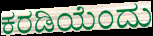
ಕರಡಿಯೆಂದು